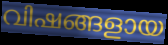
വിഷങ്ങളായ